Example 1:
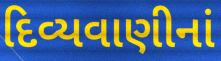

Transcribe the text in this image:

દિવ્યવાણીનાં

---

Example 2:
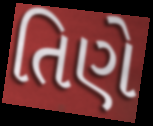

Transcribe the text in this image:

તિણે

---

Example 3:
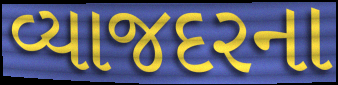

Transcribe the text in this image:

વ્યાજદરના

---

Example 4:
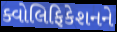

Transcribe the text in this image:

ક્વોલિફિકેશનને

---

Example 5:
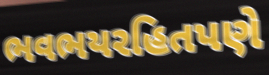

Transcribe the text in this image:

ભવભયરહિતપણે